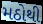
મઠોથી